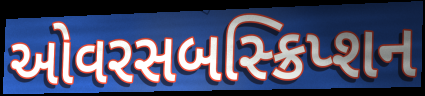
ઓવરસબસ્ક્રિપ્શન